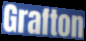
Grafton